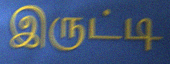
இருட்டி